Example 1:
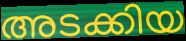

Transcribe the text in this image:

അടക്കിയ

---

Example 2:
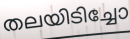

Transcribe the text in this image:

തലയിടിച്ചോ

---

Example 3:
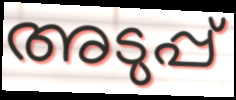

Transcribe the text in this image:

അടുപ്പ്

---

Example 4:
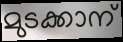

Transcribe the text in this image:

മുടക്കാന്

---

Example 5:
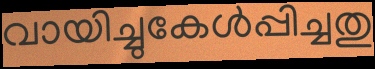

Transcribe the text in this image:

വായിച്ചുകേൾപ്പിച്ചതു